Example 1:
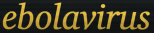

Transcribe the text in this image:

ebolavirus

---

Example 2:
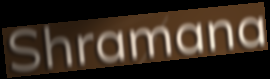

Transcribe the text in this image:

Shramana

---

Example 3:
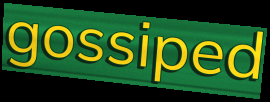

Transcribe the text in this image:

gossiped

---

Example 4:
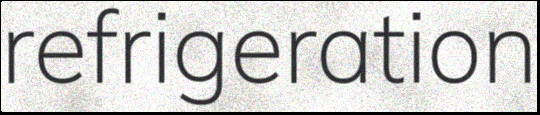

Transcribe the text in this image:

refrigeration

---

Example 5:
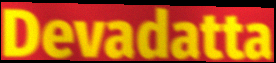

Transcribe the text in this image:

Devadatta